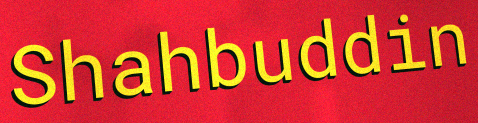
Shahbuddin